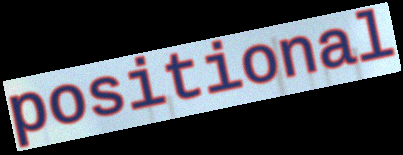
positional